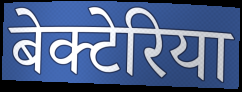
बेक्टेरिया